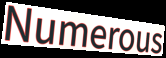
Numerous